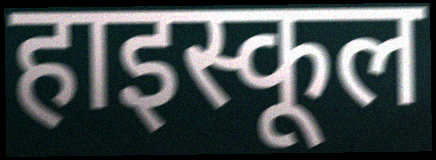
हाइस्कूल